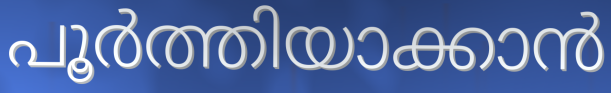
പൂർത്തിയാക്കാൻ